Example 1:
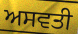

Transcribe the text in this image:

ਅਸਵਤੀ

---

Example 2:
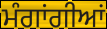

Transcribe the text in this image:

ਮੰਗਾਂਗੀਆਂ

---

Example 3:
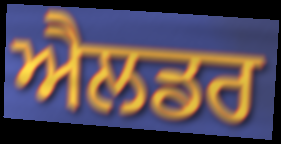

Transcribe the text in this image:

ਐਲਡਰ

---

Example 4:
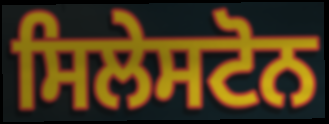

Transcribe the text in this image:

ਸਿਲੇਸਟੋਨ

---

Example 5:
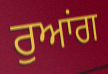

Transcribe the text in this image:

ਰੁਆਂਗ